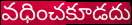
వధించకూడదు